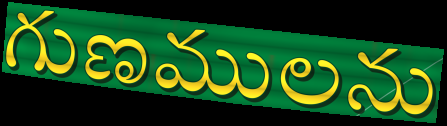
గుణములను